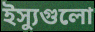
ইস্যুগুলো